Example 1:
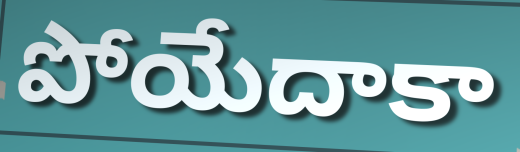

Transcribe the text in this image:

పోయేదాకా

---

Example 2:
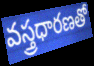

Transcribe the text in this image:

వస్త్రధారణతో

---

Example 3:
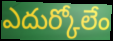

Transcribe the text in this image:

ఎదుర్కోలేం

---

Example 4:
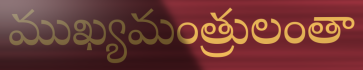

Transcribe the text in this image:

ముఖ్యమంత్రులంతా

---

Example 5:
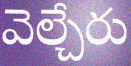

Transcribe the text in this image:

వెల్చేరు